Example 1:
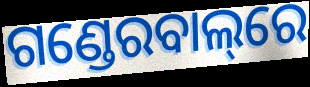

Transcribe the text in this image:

ଗଣ୍ଡେରବାଲ୍‌ରେ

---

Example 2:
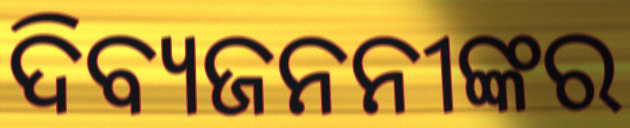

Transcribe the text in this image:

ଦିବ୍ୟଜନନୀଙ୍କର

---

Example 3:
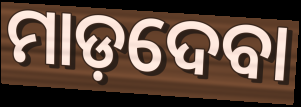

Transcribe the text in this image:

ମାଡ଼ଦେବା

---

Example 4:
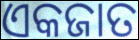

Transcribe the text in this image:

ଏକଜାତ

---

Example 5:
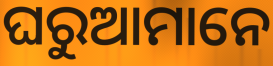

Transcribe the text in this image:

ଘରୁଆମାନେ